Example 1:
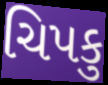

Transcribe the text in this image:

ચિપકુ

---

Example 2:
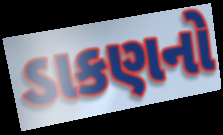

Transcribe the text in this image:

ડાકણનો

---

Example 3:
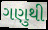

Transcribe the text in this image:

ગણુથી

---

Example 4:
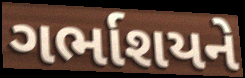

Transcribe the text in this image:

ગર્ભાશયને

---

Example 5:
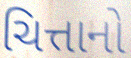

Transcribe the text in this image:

ચિત્તાનો